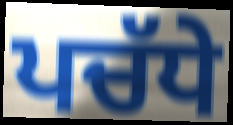
ਪਚੱਧੇ